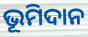
ଭୂମିଦାନ